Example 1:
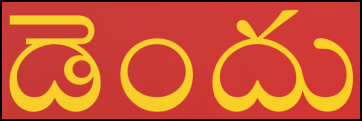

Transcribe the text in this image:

డెందు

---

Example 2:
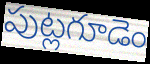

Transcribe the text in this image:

పుట్లగూడెం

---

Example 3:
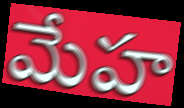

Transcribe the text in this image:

మేహ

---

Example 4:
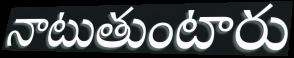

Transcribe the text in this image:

నాటుతుంటారు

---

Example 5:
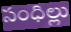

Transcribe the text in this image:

సంధిల్లు